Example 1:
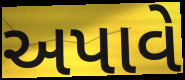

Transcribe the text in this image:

અપાવે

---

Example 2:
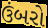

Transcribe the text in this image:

ઉંબરો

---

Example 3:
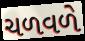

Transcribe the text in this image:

ચળવળે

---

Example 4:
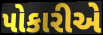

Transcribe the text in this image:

પોકારીએ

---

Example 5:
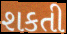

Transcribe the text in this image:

શકતી